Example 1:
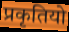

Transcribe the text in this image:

प्रकृतियो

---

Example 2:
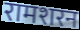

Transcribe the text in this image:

रामशरन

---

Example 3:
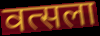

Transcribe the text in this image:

वत्सला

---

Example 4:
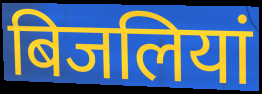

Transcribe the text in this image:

बिजलियां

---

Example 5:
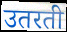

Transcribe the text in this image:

उतरती